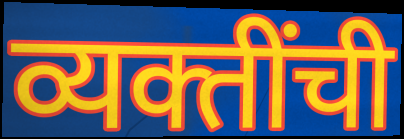
व्यक्‍तींची